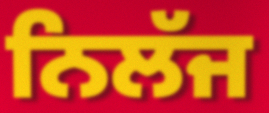
ਨਿਲੱਜ